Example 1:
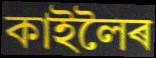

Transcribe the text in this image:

কাইলৈৰ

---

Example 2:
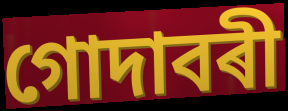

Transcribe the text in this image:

গোদাবৰী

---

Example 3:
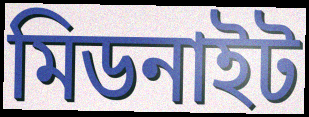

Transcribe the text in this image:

মিডনাইট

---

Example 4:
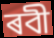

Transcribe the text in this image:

ৰবী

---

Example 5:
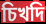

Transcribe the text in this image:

চিখদি